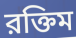
রক্তিম